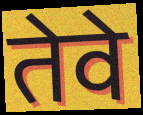
तेवे